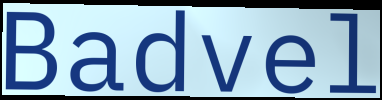
Badvel